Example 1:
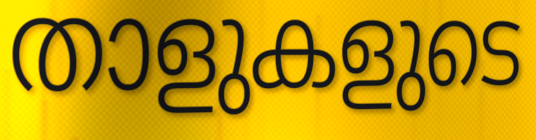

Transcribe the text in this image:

താളുകളുടെ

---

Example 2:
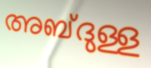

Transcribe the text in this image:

അബ്ദുള്ള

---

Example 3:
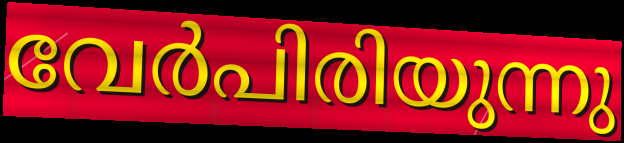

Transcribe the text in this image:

വേർപിരിയുന്നു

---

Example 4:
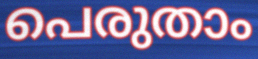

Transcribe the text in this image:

പെരുതാം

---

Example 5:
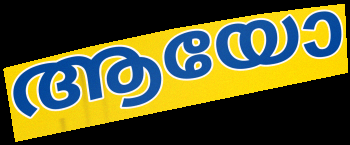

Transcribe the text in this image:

ആയോ